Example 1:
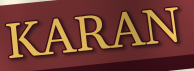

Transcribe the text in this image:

KARAN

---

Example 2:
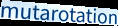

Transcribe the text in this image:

mutarotation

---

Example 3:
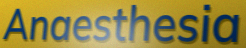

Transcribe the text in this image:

Anaesthesia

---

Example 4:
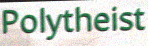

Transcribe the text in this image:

Polytheist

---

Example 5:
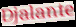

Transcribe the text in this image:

Djalante